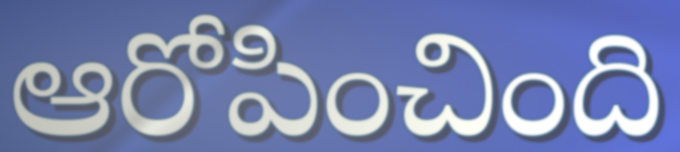
ఆరోపించింది